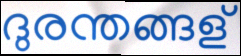
ദുരന്തങ്ങള്